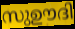
സുഊദി